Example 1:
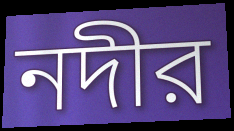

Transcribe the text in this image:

নদীর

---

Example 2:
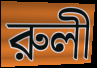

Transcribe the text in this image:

রুলী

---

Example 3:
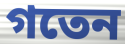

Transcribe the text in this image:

গতেন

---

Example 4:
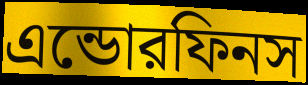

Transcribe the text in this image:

এন্ডোরফিনস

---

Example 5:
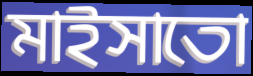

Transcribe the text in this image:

মাইসাতো